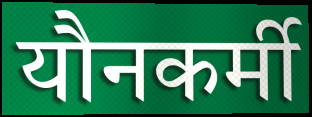
यौनकर्मी